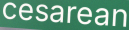
cesarean